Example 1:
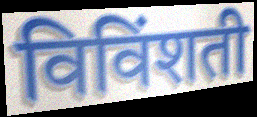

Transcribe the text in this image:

विविंशती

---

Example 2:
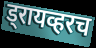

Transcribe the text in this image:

ड्रायव्हरच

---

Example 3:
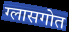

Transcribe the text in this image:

ग्लासगोत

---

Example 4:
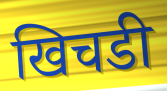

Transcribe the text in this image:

खिचडी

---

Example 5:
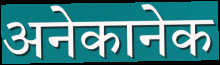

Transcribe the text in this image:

अनेकानेक